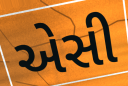
એસી